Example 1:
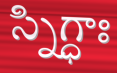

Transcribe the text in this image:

స్నిగ్ధాః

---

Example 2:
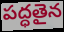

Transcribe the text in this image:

పద్ధతైన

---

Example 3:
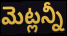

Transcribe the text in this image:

మెట్లన్నీ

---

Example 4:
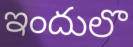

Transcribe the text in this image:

ఇందులొ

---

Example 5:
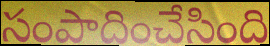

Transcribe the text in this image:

సంపాదించేసింది